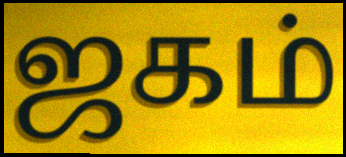
ஜகம்